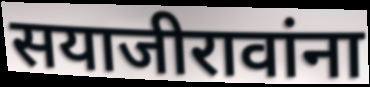
सयाजीरावांना